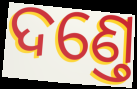
ଦଣ୍ତେ